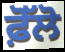
ਫ਼ੋੱਲੋ